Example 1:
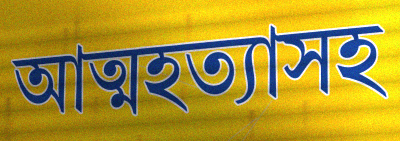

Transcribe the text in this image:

আত্মহত্যাসহ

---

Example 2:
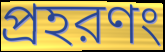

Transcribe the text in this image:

প্রহরণং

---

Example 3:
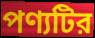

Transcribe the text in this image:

পণ্যটির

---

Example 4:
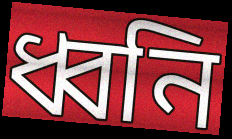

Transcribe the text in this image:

ধ্বনি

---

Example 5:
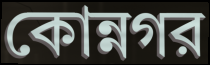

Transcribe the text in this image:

কোন্নগর